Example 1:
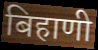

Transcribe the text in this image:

बिहाणी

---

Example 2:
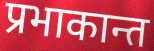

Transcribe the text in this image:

प्रभाकान्त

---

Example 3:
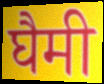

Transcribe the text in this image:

घैमी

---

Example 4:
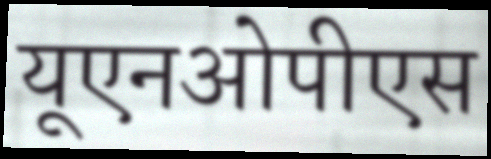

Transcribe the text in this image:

यूएनओपीएस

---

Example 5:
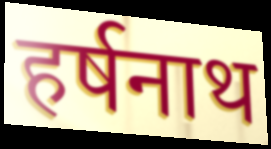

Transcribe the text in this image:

हर्षनाथ